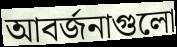
আবর্জনাগুলো